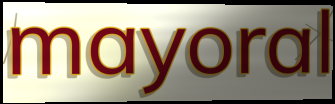
mayoral